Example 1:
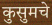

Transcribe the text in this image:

कुसुमचे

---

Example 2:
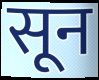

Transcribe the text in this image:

सून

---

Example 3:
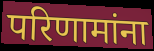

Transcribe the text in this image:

परिणामांना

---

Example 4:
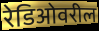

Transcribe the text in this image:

रेडिओवरील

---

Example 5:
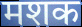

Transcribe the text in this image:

मशक